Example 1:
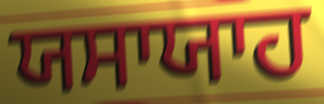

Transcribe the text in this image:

ਯਸਾਯਾਹ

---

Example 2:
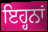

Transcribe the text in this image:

ਇਹ੍ਹਨਾਂ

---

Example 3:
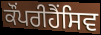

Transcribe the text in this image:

ਕੌਂਪਰੀਹੈਂਸਿਵ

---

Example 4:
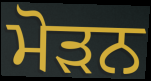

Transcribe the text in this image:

ਮੋੜਨ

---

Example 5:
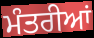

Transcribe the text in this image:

ਮੰਤਰੀਆਂ